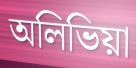
অলিভিয়া